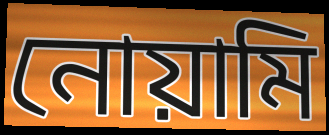
নোয়ামি